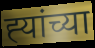
ह्‍यांच्या